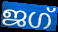
ജഗ്